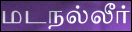
மடநல்லீர்